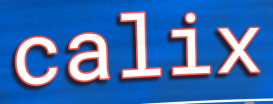
calix